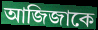
আজিজাকে